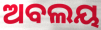
ଅବଲୟ